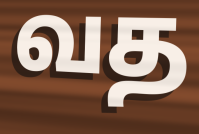
வத